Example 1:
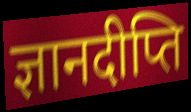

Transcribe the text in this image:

ज्ञानदीप्ति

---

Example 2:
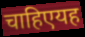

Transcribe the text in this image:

चाहिएयह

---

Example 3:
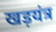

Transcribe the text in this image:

खड़यंत्र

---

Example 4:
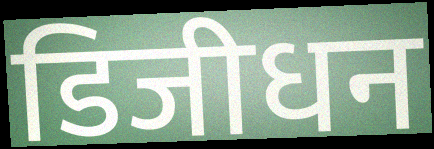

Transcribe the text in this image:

डिजीधन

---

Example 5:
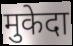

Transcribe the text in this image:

मुकेदा